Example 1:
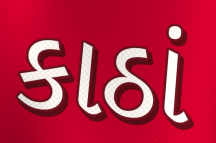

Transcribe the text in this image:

કાઠાં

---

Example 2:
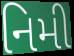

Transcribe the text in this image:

નિમી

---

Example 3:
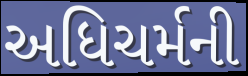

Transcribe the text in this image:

અધિચર્મની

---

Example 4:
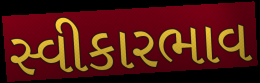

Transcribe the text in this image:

સ્વીકારભાવ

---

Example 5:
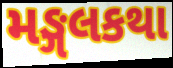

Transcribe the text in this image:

મઙ્ગલકથા